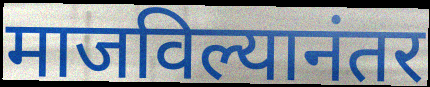
माजविल्यानंतर